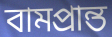
বামপ্রান্ত